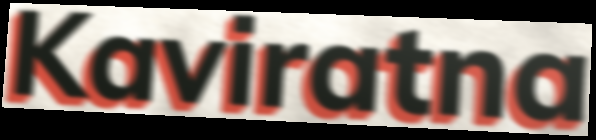
Kaviratna